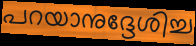
പറയാനുദ്ദേശിച്ച